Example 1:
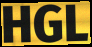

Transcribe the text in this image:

HGL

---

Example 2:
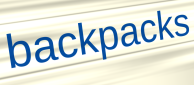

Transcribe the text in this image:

backpacks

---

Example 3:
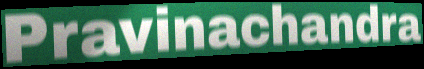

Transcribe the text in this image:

Pravinachandra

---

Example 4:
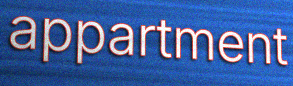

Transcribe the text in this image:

appartment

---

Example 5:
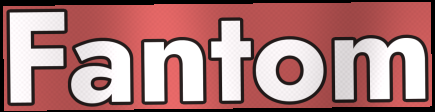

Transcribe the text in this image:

Fantom